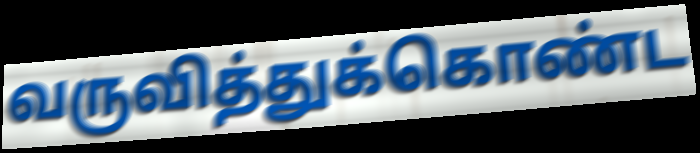
வருவித்துக்கொண்ட